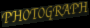
PHOTOGRAPH